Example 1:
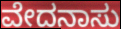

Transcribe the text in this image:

ವೇದನಾಸು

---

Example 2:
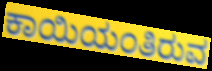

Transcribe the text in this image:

ಕಾಯಿಯಂತಿರುವ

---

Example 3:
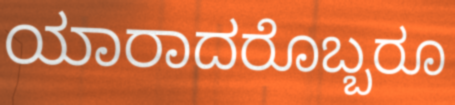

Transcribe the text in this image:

ಯಾರಾದರೊಬ್ಬರೂ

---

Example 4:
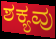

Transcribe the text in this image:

ಶಕ್ಯವು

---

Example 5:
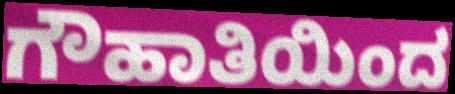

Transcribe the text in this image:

ಗೌಹಾತಿಯಿಂದ